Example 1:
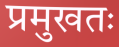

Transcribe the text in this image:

प्रमुखतः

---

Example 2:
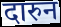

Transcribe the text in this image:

दारुन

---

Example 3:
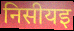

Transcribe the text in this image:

निसीयइ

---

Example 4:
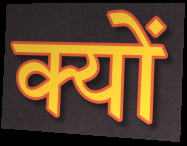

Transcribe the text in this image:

क्‍यों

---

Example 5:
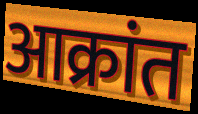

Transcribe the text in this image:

आक्रांत